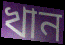
খান